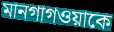
মানগাগওয়াকে